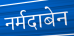
नर्मदाबेन